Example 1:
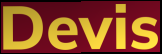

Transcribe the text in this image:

Devis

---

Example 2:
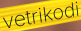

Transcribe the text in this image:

vetrikodi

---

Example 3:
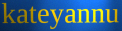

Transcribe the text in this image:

kateyannu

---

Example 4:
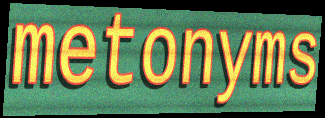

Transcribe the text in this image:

metonyms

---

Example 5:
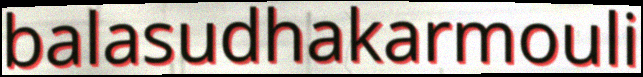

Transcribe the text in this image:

balasudhakarmouli